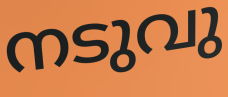
നടുവു